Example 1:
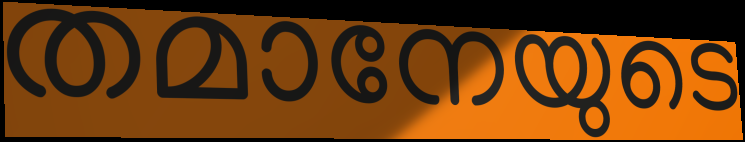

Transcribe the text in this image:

തമാനേയുടെ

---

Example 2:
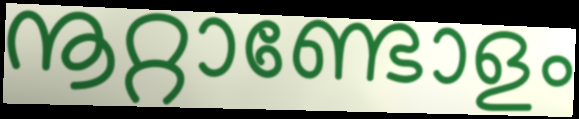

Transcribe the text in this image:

നൂറ്റാണ്ടോളം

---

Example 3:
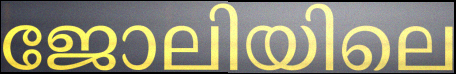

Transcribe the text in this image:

ജോലിയിലെ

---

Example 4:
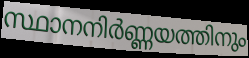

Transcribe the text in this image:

സ്ഥാനനിർണ്ണയത്തിനും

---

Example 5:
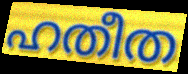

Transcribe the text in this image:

ഹതീത